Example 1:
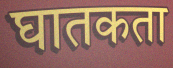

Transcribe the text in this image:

घातकता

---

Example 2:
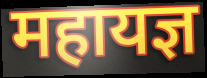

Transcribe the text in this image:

महायज्ञ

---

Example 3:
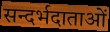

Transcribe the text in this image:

सन्दर्भदाताओं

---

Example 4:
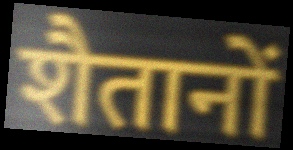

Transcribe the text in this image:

शैतानों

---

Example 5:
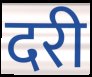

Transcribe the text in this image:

दरी